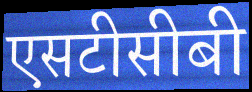
एसटीसीबी